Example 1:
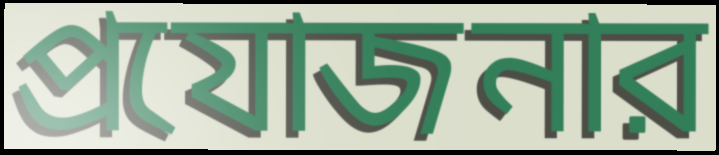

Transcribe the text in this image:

প্রযোজনার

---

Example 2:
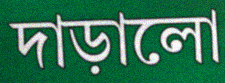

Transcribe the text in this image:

দাড়ালো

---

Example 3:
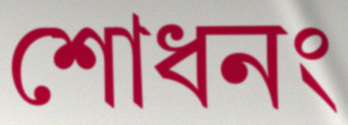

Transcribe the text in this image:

শোধনং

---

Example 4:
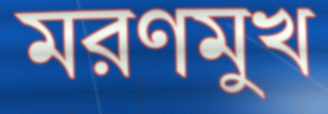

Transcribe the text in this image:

মরণমুখ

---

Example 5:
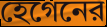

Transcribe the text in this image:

হেগেনের